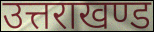
उत्तराखण्ड